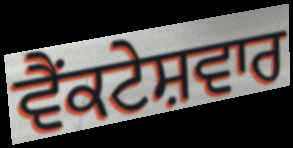
ਵੈਂਕਟੇਸ਼ਵਾਰ